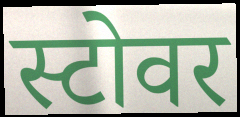
स्टोवर